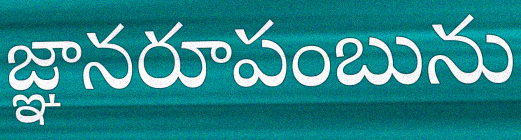
జ్ఞానరూపంబును